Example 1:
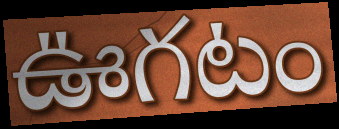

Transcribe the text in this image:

ఊగటం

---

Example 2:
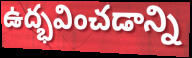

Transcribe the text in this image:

ఉద్భవించడాన్ని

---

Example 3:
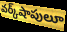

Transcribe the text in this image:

వర్క్‌షాపులూ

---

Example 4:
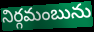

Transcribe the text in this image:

నిర్గమంబును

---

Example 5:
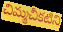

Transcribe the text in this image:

చిమ్మచీకటిని